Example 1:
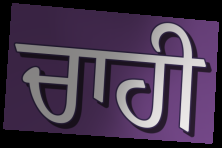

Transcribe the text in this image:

ਚਾਹੀ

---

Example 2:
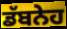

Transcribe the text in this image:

ਡੱਬਨੇਹ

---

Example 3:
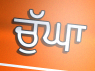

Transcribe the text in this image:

ਚੁੱਘਾ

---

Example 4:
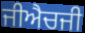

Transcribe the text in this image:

ਜੀਐਚਜੀ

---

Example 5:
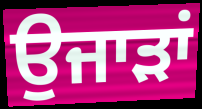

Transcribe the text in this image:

ਉਜਾੜਾਂ